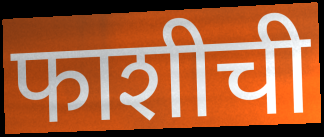
फाशीची